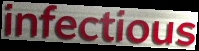
infectious